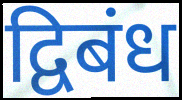
द्विबंध